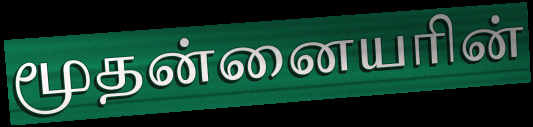
மூதன்னையரின்